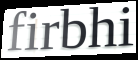
firbhi